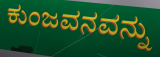
ಕುಂಜವನವನ್ನು